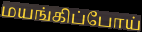
மயங்கிப்போய்